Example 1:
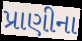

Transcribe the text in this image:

પ્રાણીના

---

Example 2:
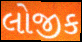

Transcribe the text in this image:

લોજીક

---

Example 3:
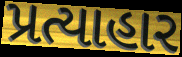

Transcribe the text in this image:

પ્રત્યાહાર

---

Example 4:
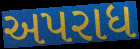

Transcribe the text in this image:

અપરાધ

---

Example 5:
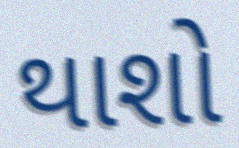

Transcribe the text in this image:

થાશો